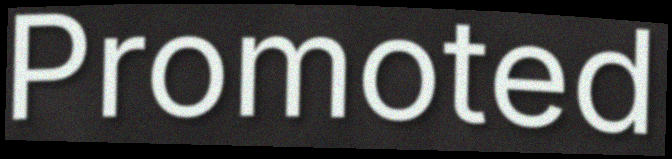
Promoted